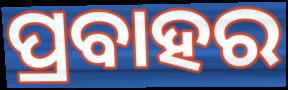
ପ୍ରବାହର